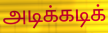
அடிக்கடிக்